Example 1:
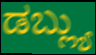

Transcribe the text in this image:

ಡಬ್ಲ್ಯು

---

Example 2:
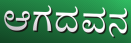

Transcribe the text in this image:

ಆಗದವನ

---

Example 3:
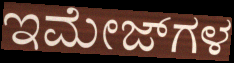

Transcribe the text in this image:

ಇಮೇಜ್‌ಗಳ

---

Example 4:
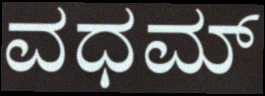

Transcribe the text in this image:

ವಧಮ್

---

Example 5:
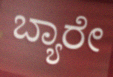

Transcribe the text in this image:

ಬ್ಯಾರೇ